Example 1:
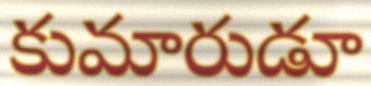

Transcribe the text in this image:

కుమారుడూ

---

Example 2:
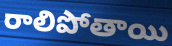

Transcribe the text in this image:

రాలిపోతాయి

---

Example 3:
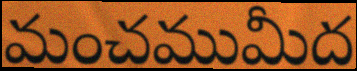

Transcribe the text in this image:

మంచముమీద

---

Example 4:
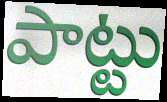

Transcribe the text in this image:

పాట్టు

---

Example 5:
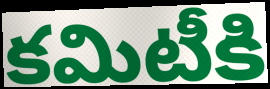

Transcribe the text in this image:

కమిటీకి